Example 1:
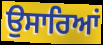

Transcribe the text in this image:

ਉਸਾਰਿਆਂ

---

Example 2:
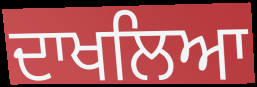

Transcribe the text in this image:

ਦਾਖਲਿਆ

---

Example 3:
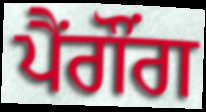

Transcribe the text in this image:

ਪੈਂਗੌਂਗ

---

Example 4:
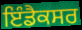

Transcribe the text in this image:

ਇੰਡੈਕਸਰ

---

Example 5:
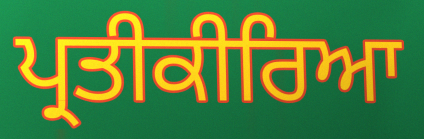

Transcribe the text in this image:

ਪ੍ਰਤੀਕੀਰਿਆ